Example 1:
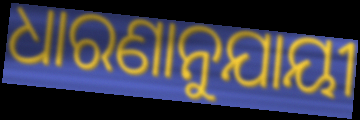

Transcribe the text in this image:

ଧାରଣାନୁଯାୟୀ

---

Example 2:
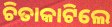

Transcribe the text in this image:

ଚିତାକାଟିଲେ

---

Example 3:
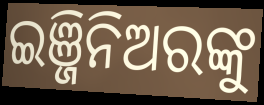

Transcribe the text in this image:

ଇଞ୍ଜିନିଅରଙ୍କୁ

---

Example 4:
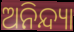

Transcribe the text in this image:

ଅନିନ୍ଦ୍ୟା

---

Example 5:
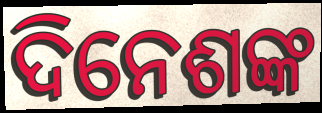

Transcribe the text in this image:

ଦିନେଶଙ୍କ